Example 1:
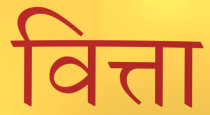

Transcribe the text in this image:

वित्ता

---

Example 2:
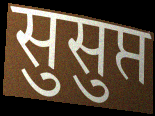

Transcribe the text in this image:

सुसुप्त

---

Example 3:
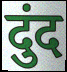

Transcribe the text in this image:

दुंद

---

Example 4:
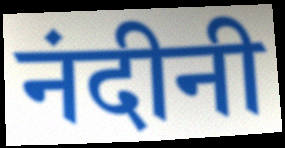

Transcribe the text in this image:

नंदीनी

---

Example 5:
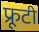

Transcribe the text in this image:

फ्रूटी